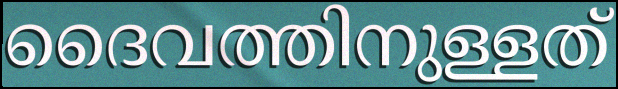
ദൈവത്തിനുള്ളത്